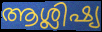
ആശ്ലിഷ്യ